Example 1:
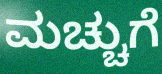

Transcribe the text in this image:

ಮಚ್ಚುಗೆ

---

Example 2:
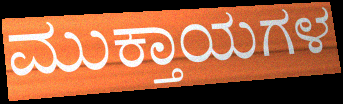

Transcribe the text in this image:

ಮುಕ್ತಾಯಗಳ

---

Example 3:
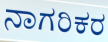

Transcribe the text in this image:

ನಾಗರಿಕರ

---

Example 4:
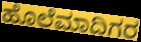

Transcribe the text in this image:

ಹೊಲೆಮಾದಿಗರ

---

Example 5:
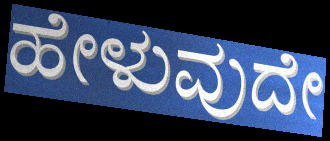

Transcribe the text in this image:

ಹೇಳುವುದೇ